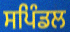
ਸਪਿੰਡਲ